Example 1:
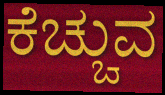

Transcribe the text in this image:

ಕೆಚ್ಚುವ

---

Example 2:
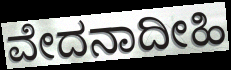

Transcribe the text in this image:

ವೇದನಾದೀಹಿ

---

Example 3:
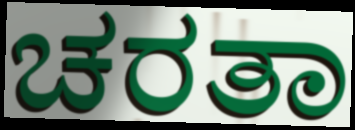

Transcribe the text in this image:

ಚರತಾ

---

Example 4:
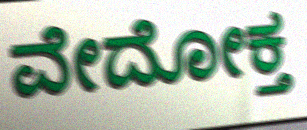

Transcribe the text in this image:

ವೇದೋಕ್ತ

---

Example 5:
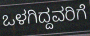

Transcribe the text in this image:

ಒಳಗಿದ್ದವರಿಗೆ